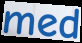
med